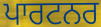
ਪਾਰਟਨਰ